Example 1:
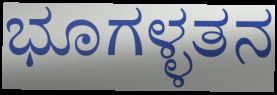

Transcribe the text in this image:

ಭೂಗಳ್ಳತನ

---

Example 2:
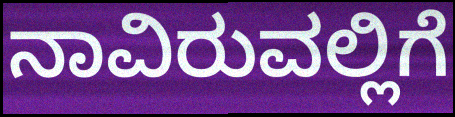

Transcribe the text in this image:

ನಾವಿರುವಲ್ಲಿಗೆ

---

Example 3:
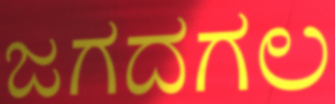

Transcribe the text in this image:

ಜಗದಗಲ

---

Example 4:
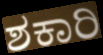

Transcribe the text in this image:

ಶಕಾರಿ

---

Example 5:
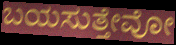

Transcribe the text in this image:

ಬಯಸುತ್ತೇವೋ